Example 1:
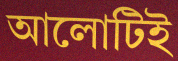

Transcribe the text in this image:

আলোটিই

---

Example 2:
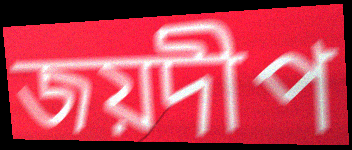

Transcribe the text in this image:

জয়দীপ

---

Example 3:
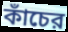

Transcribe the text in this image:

কাঁচের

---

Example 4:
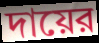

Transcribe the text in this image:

দায়ের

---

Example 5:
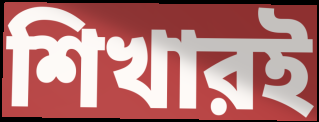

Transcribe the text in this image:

শিখারই